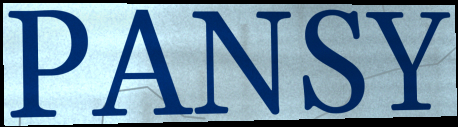
PANSY